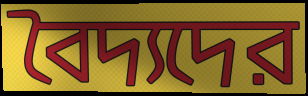
বৈদ্যদের